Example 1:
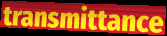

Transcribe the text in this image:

transmittance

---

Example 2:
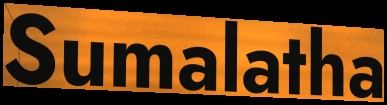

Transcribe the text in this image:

Sumalatha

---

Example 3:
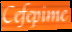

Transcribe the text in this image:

Cefepime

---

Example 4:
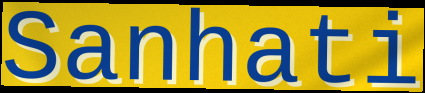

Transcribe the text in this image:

Sanhati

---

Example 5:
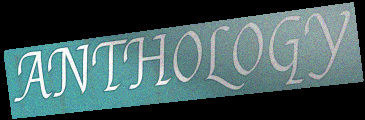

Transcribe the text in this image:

ANTHOLOGY